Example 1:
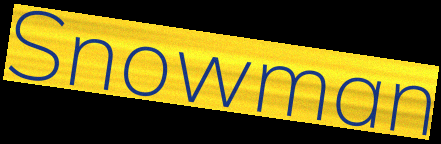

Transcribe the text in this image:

Snowman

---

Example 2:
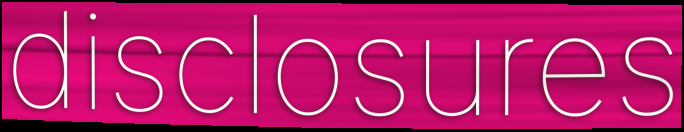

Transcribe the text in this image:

disclosures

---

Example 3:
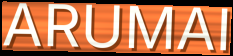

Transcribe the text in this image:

ARUMAI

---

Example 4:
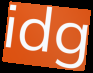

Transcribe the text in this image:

idg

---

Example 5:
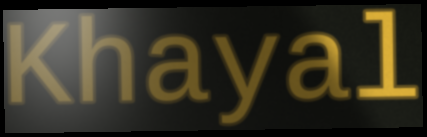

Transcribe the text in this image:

Khayal